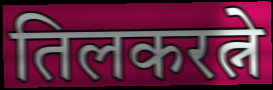
तिलकरत्ने